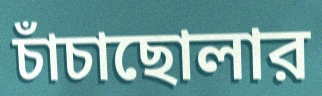
চাঁচাছোলার